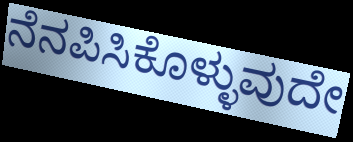
ನೆನಪಿಸಿಕೊಳ್ಳುವುದೇ